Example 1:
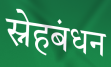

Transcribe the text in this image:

स्नेहबंधन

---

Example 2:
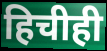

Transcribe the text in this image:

हिचीही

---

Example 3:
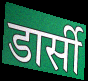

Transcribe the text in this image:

डार्सी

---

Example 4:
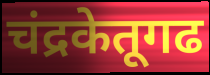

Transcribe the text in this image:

चंद्रकेतूगढ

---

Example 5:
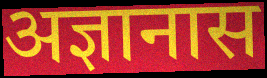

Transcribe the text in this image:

अज्ञानास